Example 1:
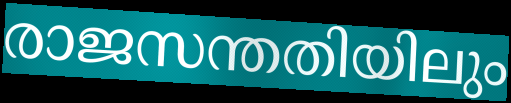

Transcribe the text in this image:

രാജസന്തതിയിലും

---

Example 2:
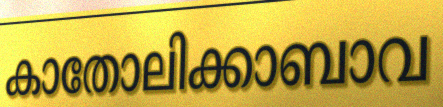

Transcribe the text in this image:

കാതോലിക്കാബാവ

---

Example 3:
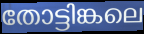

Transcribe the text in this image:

തോട്ടിങ്കലെ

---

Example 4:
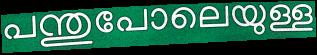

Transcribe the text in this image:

പന്തുപോലെയുള്ള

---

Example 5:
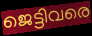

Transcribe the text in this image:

ജെട്ടിവരെ